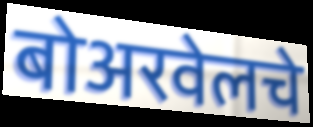
बोअरवेलचे